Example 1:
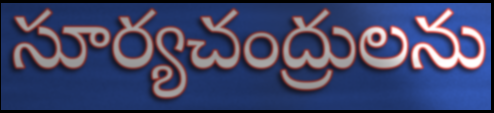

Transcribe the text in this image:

సూర్యచంద్రులను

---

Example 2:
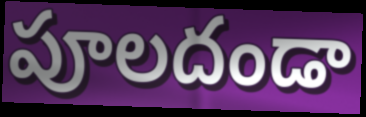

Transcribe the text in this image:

పూలదండా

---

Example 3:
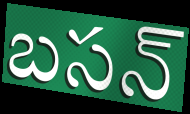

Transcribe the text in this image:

బసన్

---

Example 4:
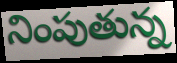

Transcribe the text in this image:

నింపుతున్న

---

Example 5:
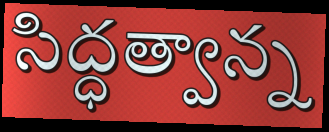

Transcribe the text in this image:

సిద్ధత్వాన్న